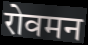
रोवमन